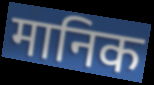
मानिक